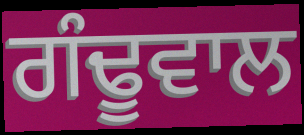
ਗੰਢੂਵਾਲ